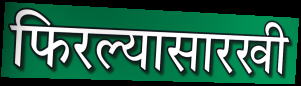
फिरल्यासारखी